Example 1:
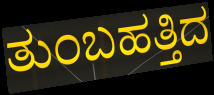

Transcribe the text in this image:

ತುಂಬಹತ್ತಿದ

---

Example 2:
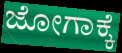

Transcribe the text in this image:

ಜೋಗಾಕ್ಕೆ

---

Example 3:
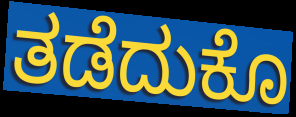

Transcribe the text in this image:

ತಡೆದುಕೊ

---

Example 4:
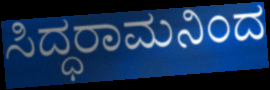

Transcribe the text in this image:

ಸಿದ್ಧರಾಮನಿಂದ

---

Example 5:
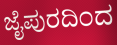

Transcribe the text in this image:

ಜೈಪುರದಿಂದ